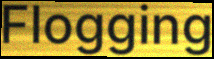
Flogging